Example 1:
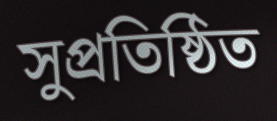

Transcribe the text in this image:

সুপ্ৰতিষ্ঠিত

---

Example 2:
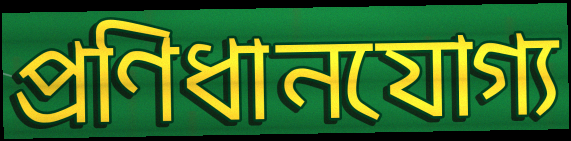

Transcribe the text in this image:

প্ৰণিধানযোগ্য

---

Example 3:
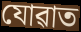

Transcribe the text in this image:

যোৱাত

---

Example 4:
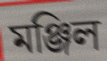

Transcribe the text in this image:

মঞ্জিল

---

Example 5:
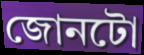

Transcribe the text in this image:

জোনটো